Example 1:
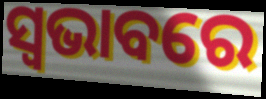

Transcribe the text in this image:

ସ୍ବଭାବରେ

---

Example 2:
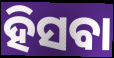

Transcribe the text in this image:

ହିସବା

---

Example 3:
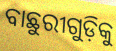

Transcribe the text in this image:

ବାଛୁରୀଗୁଡ଼ିକୁ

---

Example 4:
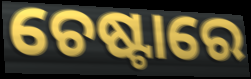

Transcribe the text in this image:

ଚେଷ୍ଟାରେ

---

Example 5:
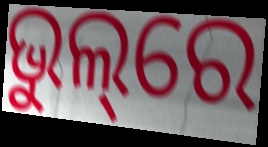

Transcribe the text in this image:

ଭୁଲ୍‌ରେ